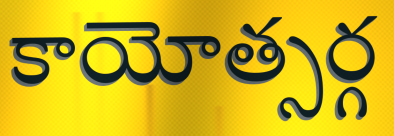
కాయోత్సర్గ